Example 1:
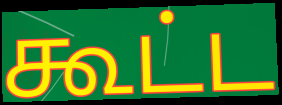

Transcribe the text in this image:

கூட்ட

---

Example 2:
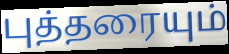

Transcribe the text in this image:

புத்தரையும்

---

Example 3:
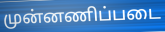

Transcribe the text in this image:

முன்னணிப்படை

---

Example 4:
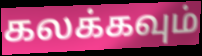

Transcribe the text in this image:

கலக்கவும்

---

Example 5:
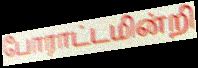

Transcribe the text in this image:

போராட்டமின்றி